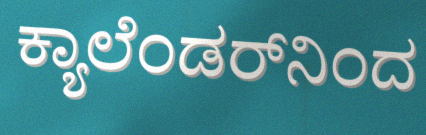
ಕ್ಯಾಲೆಂಡರ್‌ನಿಂದ